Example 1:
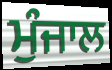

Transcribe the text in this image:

ਮੁੰਜਾਲ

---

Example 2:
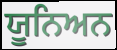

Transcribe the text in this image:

ਯੂਨਿਅਨ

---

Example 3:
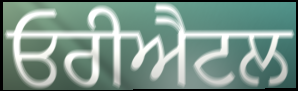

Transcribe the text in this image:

ਓਰੀਐਟਲ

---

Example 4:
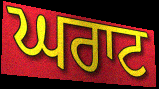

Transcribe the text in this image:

ਘਰਾਟ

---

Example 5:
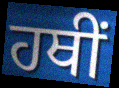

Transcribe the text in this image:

ਹਥੀਂ